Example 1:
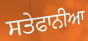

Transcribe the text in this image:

ਸਤੇਫਾਨੀਆ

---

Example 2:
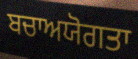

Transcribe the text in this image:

ਬਚਾਅਯੋਗਤਾ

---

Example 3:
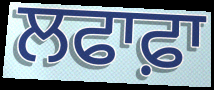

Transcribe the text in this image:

ਲਫਾਫ਼ਾ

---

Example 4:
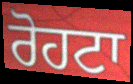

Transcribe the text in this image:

ਰੋਹਟਾ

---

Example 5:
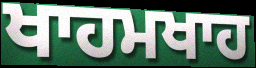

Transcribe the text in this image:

ਖਾਹਮਖਾਹ